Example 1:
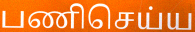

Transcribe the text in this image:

பணிசெய்ய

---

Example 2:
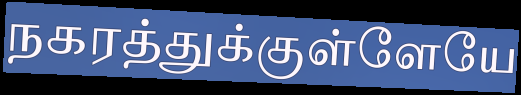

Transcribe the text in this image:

நகரத்துக்குள்ளேயே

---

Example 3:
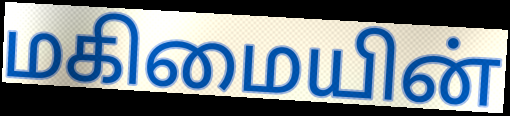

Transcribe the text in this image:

மகிமையின்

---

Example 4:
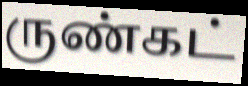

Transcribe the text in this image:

ருண்கட்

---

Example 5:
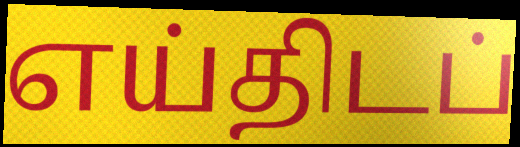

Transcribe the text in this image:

எய்திடப்